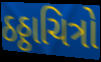
ઠઠ્ઠાચિત્રો